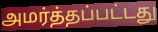
அமர்த்தப்பட்டது